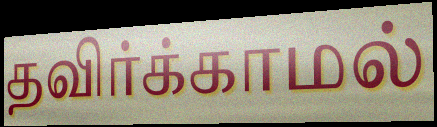
தவிர்க்காமல்